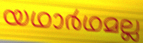
യഥാർഥമല്ല